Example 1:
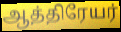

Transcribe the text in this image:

ஆத்திரேயர்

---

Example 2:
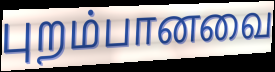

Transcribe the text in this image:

புறம்பானவை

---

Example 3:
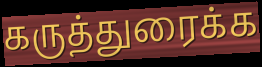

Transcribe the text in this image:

கருத்துரைக்க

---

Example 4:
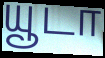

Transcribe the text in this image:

யூடா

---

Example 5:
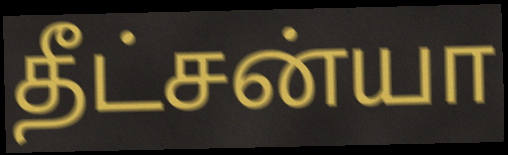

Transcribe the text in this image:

தீட்சன்யா